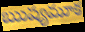
ఋష్యమూక